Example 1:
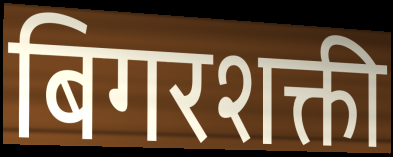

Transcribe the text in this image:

बिगरशक्ती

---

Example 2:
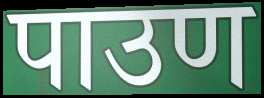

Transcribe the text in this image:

पाउण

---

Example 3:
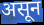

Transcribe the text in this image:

असून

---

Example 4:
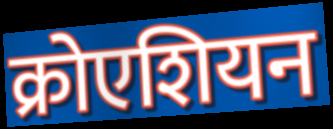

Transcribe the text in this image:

क्रोएशियन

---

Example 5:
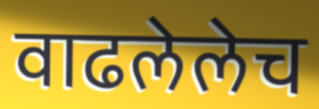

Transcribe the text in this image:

वाढलेलेच